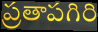
ప్రతాపగిరి